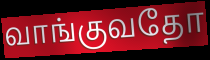
வாங்குவதோ